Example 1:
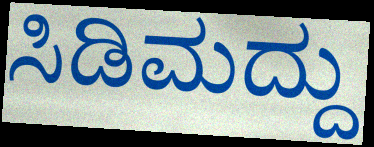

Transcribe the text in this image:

ಸಿಡಿಮದ್ದು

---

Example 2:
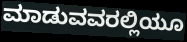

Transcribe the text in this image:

ಮಾಡುವವರಲ್ಲಿಯೂ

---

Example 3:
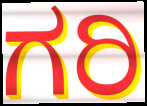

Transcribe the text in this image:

ಗರಿ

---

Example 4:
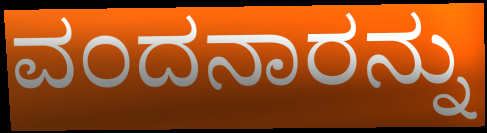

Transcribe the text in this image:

ವಂದನಾರನ್ನು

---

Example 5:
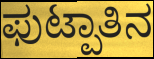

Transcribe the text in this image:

ಫುಟ್ಪಾತಿನ